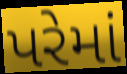
પરેમાં